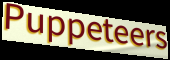
Puppeteers